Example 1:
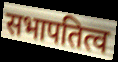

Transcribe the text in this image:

सभापतित्व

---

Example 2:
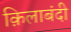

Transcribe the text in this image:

क़िलाबंदी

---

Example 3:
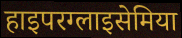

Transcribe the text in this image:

हाइपरग्लाइसेमिया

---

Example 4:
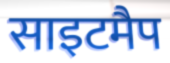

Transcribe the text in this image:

साइटमैप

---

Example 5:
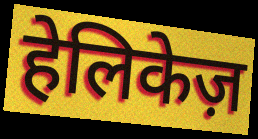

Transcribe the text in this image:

हेलिकेज़